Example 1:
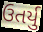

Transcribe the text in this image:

ઉતર્યુ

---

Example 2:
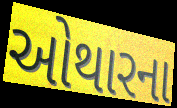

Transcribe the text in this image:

ઓથારના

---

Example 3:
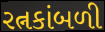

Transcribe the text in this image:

રત્નકાંબળી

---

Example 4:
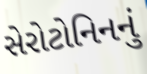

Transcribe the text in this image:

સેરોટોનિનનું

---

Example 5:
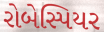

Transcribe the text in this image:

રોબેસ્પિયર